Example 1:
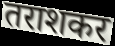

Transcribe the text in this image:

तराशकर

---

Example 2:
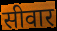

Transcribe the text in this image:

सीवार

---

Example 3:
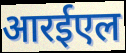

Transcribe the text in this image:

आरईएल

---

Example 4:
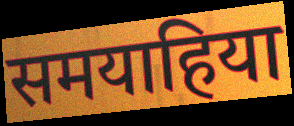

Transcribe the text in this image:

समयाहिया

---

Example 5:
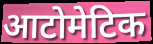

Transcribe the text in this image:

आटोमेटिक